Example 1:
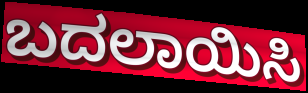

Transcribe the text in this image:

ಬದಲಾಯಿಸಿ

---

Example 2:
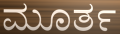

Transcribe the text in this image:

ಮೂರ್ತ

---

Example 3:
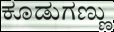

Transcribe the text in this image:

ಕೂಡುಗಣ್ಣು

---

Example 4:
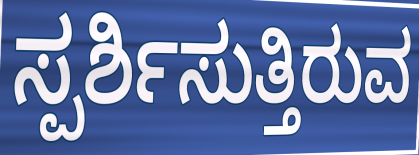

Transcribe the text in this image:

ಸ್ಪರ್ಶಿಸುತ್ತಿರುವ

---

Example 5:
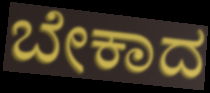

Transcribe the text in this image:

ಬೇಕಾದ